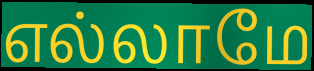
எல்லாமே